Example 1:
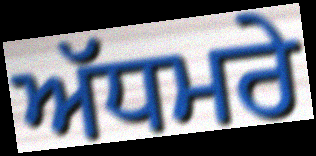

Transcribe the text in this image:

ਅੱਧਮਰੇ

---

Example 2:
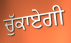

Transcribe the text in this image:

ਚੁੱਕਾਏਗੀ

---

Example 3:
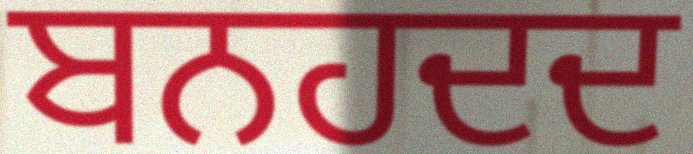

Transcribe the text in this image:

ਬਨਹਦਦ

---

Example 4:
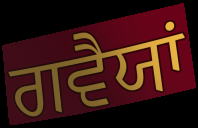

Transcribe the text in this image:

ਗਵੈਯਾਂ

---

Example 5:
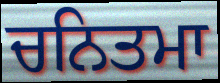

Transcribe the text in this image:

ਚਨਿਤਮਾ